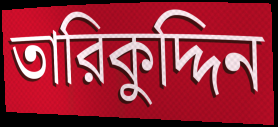
তারিকুদ্দিন